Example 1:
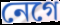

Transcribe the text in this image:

নেগে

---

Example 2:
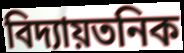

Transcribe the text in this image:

বিদ্যায়তনিক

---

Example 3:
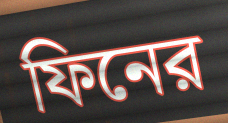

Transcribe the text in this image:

ফিনের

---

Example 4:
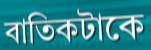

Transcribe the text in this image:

বাতিকটাকে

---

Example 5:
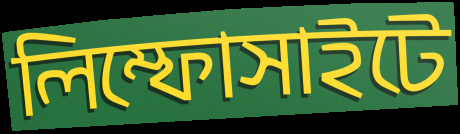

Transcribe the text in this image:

লিম্ফোসাইটে